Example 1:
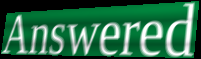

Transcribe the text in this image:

Answered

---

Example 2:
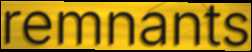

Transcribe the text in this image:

remnants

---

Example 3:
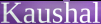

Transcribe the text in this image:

Kaushal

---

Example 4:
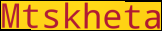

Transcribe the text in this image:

Mtskheta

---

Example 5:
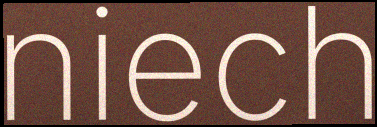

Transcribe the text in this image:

niech